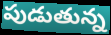
పుడుతున్న